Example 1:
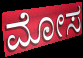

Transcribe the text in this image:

ಮೋಸ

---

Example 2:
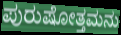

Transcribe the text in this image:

ಪುರುಷೋತ್ತಮನು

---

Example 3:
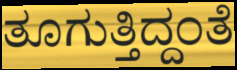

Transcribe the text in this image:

ತೂಗುತ್ತಿದ್ದಂತೆ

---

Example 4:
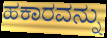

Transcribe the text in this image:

ಹಕಾರವನ್ನು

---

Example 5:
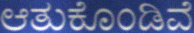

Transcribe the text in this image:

ಆತುಕೊಂಡಿವೆ